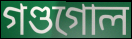
গণ্ডগোল